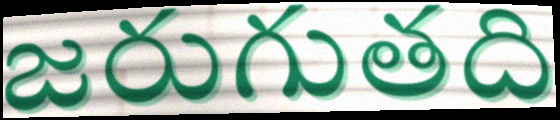
జరుగుతది